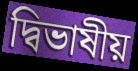
দ্বিভাষীয়